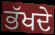
ਭੱਖਦੇ